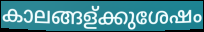
കാലങ്ങള്ക്കുശേഷം